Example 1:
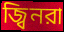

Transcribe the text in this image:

জ্বিনরা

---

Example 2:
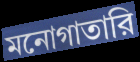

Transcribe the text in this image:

মনোগাতারি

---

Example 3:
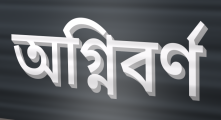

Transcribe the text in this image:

অগ্নিবর্ণ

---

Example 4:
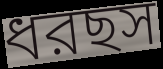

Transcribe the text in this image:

ধরছস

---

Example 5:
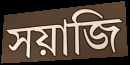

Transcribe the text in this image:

সয়াজি